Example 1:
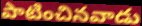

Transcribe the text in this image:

పాటించినవాడు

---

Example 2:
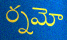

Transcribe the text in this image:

ర్నమో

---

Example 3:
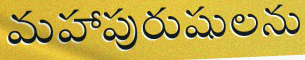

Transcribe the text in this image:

మహాపురుషులను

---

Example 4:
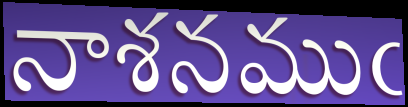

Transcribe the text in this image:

నాశనముఁ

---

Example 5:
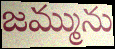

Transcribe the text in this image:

జమ్మును